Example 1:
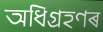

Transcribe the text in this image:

অধিগ্ৰহণৰ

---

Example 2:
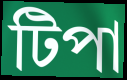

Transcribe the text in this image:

টিপা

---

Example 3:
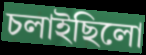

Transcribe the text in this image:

চলাইছিলো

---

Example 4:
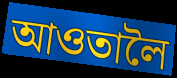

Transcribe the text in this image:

আওতালৈ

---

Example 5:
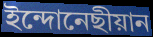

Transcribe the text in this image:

ইন্দোনেছীয়ান